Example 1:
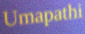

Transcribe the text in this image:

Umapathi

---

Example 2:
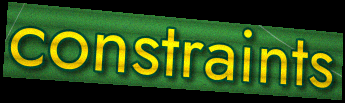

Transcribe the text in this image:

constraints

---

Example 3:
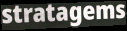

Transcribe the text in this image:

stratagems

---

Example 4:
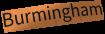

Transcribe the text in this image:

Burmingham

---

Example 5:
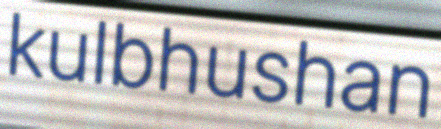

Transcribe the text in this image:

kulbhushan